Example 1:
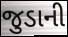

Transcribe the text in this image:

જુડાની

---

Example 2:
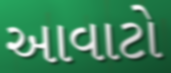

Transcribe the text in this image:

આવાટો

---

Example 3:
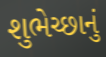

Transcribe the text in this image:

શુભેચ્છાનું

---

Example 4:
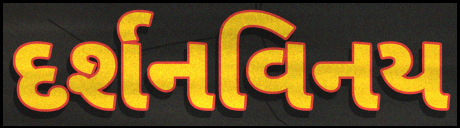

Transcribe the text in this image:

દર્શનવિનય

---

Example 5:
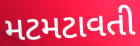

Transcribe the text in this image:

મટમટાવતી